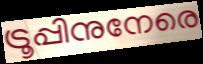
ട്രൂപ്പിനുനേരെ